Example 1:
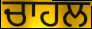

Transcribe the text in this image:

ਚਾਹਲ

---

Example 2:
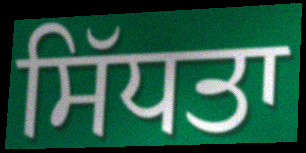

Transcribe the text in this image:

ਸਿੱਧਤਾ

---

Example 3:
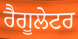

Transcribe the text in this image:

ਰੈਗੂਲੇਟਰ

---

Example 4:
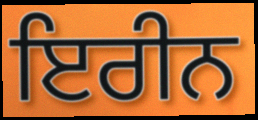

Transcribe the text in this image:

ਇਰੀਨ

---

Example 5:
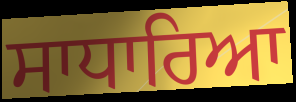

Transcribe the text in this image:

ਸਾਧਾਰਿਆ